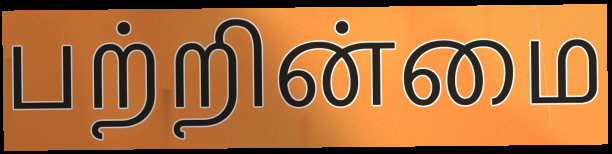
பற்றின்மை